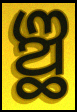
ଞ୍ଛ